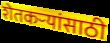
शेतकऱ्यांसाठी